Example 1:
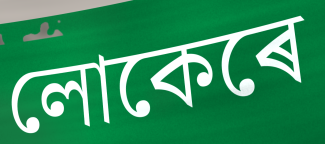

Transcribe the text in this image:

লোকেৰে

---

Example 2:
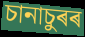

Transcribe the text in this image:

চানাচুৰৰ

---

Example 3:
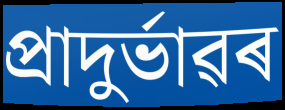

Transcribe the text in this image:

প্ৰাদুৰ্ভাৱৰ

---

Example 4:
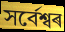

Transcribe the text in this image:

সৰ্বেশ্বৰ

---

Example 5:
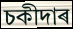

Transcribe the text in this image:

চকীদাৰ